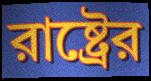
রাষ্ট্রের